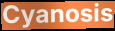
Cyanosis